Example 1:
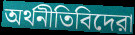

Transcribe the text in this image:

অর্থনীতিবিদেরা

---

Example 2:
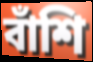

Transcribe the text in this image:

বাঁশি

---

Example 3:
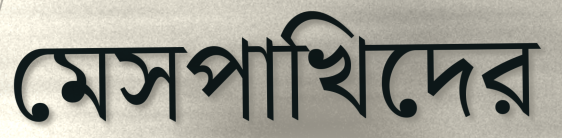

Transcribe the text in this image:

মেসপাখিদের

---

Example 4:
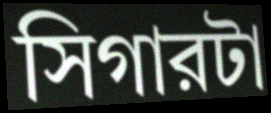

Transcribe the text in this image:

সিগারটা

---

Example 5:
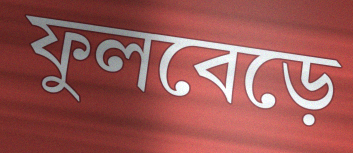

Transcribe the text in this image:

ফুলবেড়ে